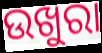
ଉଖୁରା